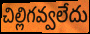
చిల్లిగవ్వలేదు